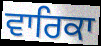
ਵਾਰਿਕਾ